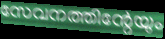
സേവനത്തിന്റേയും